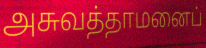
அசுவத்தாமனைப்